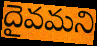
దైవమని